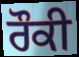
ਰੌਕੀ